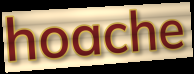
hoache